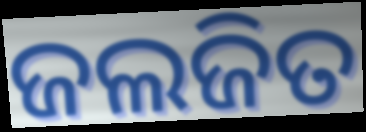
ଜଲଜିତ